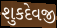
શુકદેવજી